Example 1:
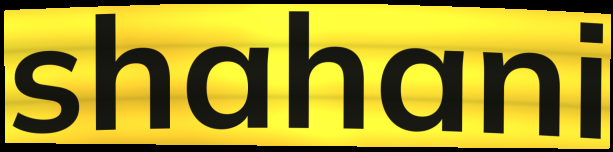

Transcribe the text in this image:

shahani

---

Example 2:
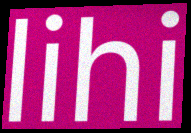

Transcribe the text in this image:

lihi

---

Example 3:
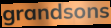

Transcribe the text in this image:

grandsons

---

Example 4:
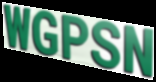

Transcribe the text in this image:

WGPSN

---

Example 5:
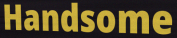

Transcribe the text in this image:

Handsome